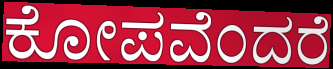
ಕೋಪವೆಂದರೆ